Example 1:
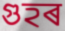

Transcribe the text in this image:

গুহৰ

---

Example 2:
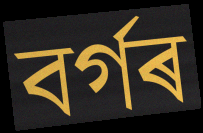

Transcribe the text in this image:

বৰ্গৰ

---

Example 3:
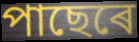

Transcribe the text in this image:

পাছেৰে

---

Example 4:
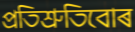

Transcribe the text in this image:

প্ৰতিশ্ৰুতিবোৰ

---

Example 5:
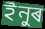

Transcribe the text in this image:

ইনুৰ